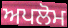
ਅਪਲੋਮ